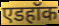
एडहॉक